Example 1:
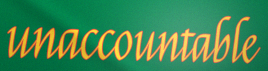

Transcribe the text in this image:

unaccountable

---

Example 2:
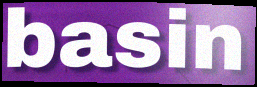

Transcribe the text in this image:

basin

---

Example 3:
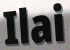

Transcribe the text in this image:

Ilai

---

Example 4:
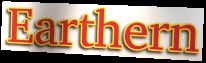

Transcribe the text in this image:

Earthern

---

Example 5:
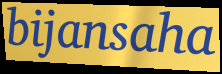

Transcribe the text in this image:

bijansaha